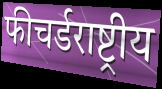
फीचर्डराष्ट्रीय